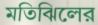
মতিঝিলের